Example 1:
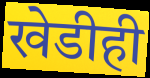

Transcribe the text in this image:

खेडीही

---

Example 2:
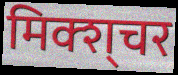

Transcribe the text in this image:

मिक्श्चर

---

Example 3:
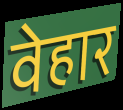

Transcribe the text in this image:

वेहार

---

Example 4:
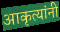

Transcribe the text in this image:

आकृत्यांनी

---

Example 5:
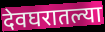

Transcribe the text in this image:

देवघरातल्या